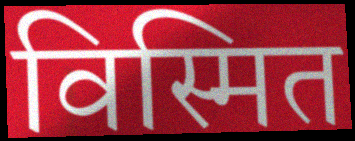
विस्मित